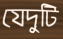
যেদুটি